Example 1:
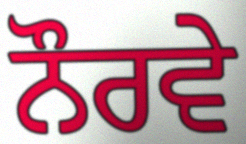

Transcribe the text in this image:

ਨੌਰਵੇ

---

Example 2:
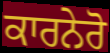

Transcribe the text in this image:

ਕਾਰਨੇਰੋ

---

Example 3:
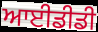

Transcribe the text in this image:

ਆਈਡੀਡੀ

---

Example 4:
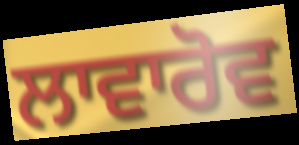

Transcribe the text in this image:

ਲਾਵਾਰੋਵ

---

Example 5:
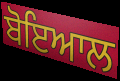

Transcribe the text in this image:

ਬੋਇਆਲ